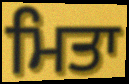
ਮਿਤਾ